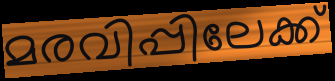
മരവിപ്പിലേക്ക്